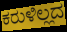
ಕರುಳಿಲ್ಲದ